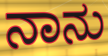
ನಾನು